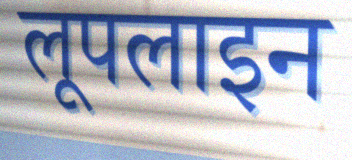
लूपलाइन